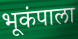
भूकंपाला